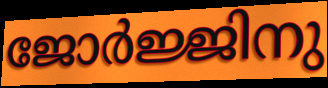
ജോർജ്ജിനു